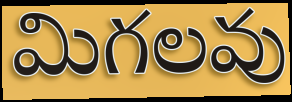
మిగలవు